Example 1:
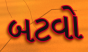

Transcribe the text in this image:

બટવો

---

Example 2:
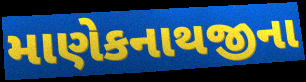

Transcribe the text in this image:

માણેકનાથજીના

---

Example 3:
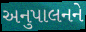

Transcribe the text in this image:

અનુપાલનને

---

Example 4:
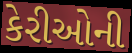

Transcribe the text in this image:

કેરીઓની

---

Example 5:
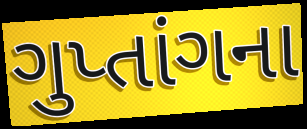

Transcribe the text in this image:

ગુપ્તાંગના